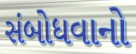
સંબોધવાનો